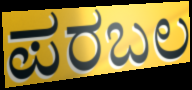
ಪರಬಲ